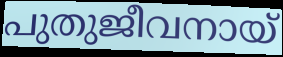
പുതുജീവനായ്